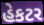
હેકટર